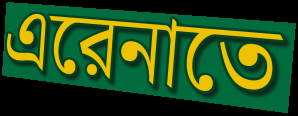
এরেনাতে